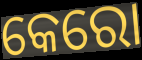
କେରୋ